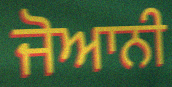
ਜੋਆਨੀ